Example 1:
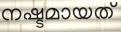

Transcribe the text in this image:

നഷ്ടമായത്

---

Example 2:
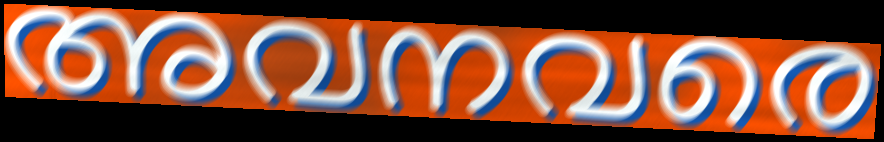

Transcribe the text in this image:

അവനവരെ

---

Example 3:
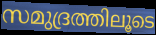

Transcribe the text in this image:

സമുദ്രത്തിലൂടെ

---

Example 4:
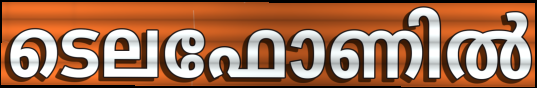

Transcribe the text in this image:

ടെലഫോണിൽ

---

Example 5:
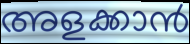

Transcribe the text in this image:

അളക്കാൻ